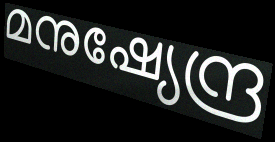
മനുഷ്യേന്ദ്ര